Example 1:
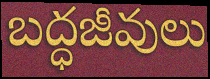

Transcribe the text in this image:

బద్ధజీవులు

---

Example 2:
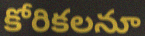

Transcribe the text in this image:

కోరికలనూ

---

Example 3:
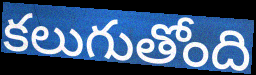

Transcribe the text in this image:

కలుగుతోంది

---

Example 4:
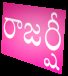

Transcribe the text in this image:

రాజర్షీ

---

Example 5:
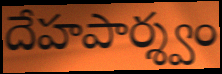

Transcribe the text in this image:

దేహపార్శ్వం